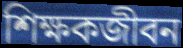
শিক্ষকজীবন